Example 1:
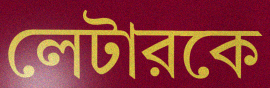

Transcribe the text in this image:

লেটারকে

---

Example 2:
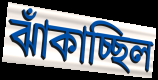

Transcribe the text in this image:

ঝাঁকাচ্ছিল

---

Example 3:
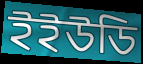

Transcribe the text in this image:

ইইউডি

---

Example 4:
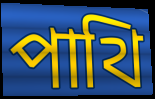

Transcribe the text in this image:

পাথি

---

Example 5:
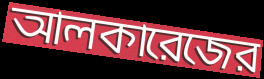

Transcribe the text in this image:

আলকারেজের